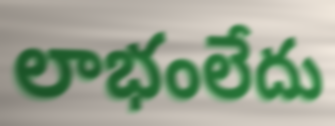
లాభంలేదు